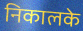
निकालके